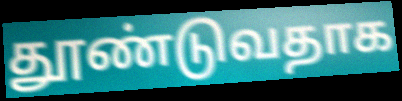
தூண்டுவதாக